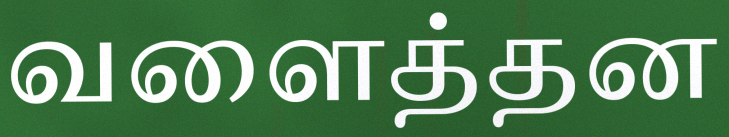
வளைத்தன